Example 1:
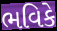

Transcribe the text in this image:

ભવિકે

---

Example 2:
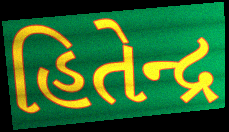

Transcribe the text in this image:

હિતેન્દ્ર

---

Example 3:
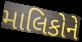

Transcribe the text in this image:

માલિકોને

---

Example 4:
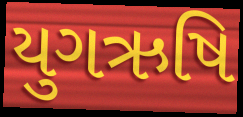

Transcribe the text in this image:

યુગઋષિ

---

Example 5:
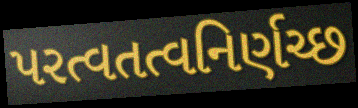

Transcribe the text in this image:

પરત્વતત્વનિર્ણચ્છ